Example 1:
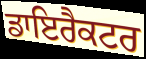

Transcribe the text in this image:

ਡਾਇਰੈਕਟਰ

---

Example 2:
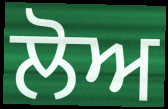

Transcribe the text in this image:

ਲੋਅ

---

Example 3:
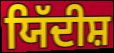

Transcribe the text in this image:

ਯਿੱਦੀਸ਼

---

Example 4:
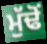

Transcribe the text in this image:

ਮੁੱਢੋਂ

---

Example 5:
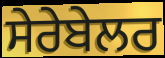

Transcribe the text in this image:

ਸੇਰੇਬੇਲਰ